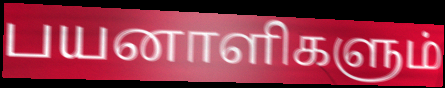
பயனாளிகளும்